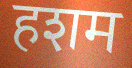
हशम